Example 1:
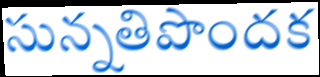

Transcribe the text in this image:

సున్నతిపొందక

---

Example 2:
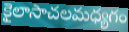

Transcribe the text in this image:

కైలాసాచలమధ్యగం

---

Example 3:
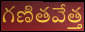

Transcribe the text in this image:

గణితవేత్త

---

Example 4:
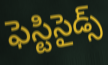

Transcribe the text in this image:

ఫెస్టిసైడ్స్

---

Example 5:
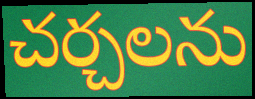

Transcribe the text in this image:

చర్చలను